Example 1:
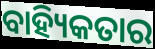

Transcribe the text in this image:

ବାହ୍ୟିକତାର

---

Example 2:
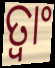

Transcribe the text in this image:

ତ୍ଵାଂ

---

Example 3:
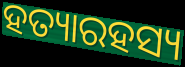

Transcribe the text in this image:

ହତ୍ୟାରହସ୍ୟ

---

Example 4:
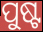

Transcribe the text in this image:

ପୁଷ୍ଟ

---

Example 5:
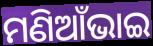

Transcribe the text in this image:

ମଣିଆଁଭାଇ